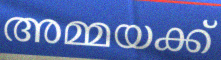
അമ്മയക്ക്